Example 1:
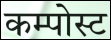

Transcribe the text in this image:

कम्पोस्ट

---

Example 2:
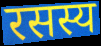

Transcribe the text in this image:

रसस्य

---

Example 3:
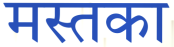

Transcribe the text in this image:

मस्तका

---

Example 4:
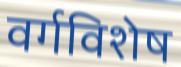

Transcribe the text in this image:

वर्गविशेष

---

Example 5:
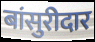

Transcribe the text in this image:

बांसुरीदार